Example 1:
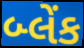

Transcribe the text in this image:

બ્લેંક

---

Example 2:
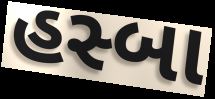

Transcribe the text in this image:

હસ્બા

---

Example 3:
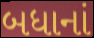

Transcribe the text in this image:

બધાનાં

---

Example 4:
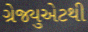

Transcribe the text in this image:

ગ્રેજ્યુએટથી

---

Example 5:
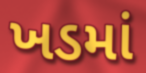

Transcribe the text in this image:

ખડમાં